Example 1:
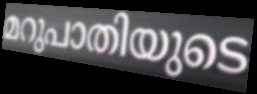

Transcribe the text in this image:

മറുപാതിയുടെ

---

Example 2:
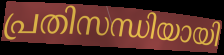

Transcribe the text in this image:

പ്രതിസന്ധിയായി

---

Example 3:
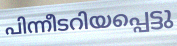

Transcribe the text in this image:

പിന്നീടറിയപ്പെട്ടു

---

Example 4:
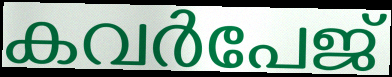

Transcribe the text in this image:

കവർപേജ്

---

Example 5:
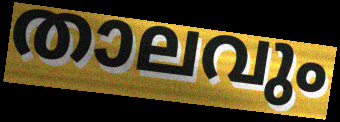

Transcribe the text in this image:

താലവും